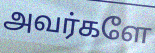
அவர்களே